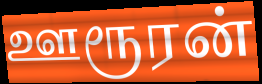
ஊரூரன்